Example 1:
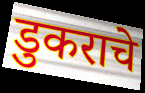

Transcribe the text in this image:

डुकराचे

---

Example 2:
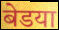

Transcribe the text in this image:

बेडया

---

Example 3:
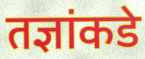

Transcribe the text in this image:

तज्ञांकडे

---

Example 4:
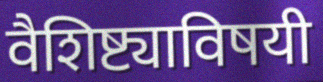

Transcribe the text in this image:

वैशिष्ट्याविषयी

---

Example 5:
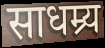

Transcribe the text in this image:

साधम्र्य